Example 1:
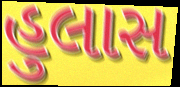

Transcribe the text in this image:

હુલાસ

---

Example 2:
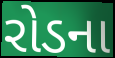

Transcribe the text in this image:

રોડના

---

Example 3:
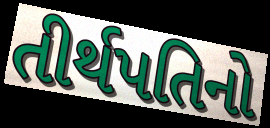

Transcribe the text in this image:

તીર્થપતિનો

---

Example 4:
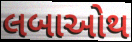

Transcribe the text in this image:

લબાઓથ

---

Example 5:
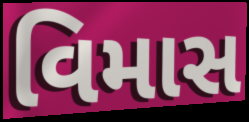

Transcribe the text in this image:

વિમાસ